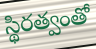
స్థిరత్వంతో